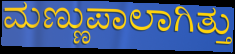
ಮಣ್ಣುಪಾಲಾಗಿತ್ತು